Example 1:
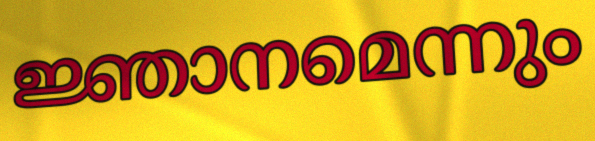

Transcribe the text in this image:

ജ്ഞാനമെന്നും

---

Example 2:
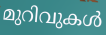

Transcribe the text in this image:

മുറിവുകൾ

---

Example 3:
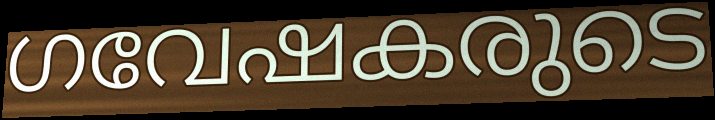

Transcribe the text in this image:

ഗവേഷകരുടെ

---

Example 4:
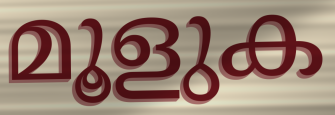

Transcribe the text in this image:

മൂളുക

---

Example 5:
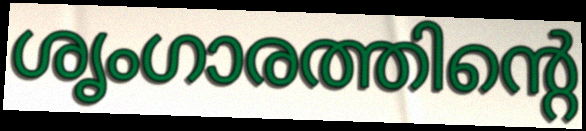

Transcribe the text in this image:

ശൃംഗാരത്തിന്റെ